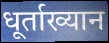
धूर्ताख्यान